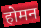
होमन